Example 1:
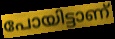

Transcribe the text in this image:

പോയിട്ടാണ്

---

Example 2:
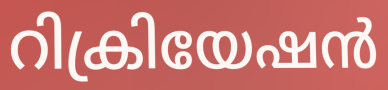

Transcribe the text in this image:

റിക്രിയേഷൻ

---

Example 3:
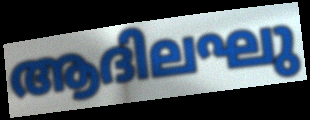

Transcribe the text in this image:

ആദിലഘു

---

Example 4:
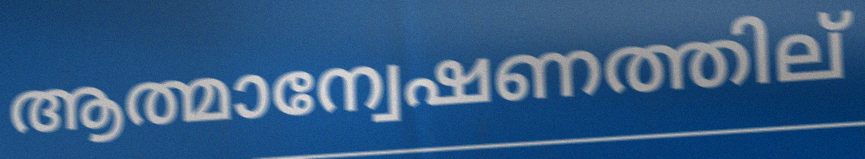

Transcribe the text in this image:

ആത്മാന്വേഷണത്തില്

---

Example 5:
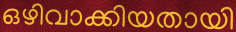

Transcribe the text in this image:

ഒഴിവാക്കിയതായി